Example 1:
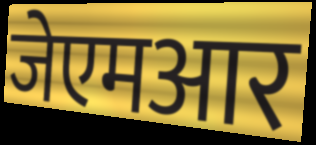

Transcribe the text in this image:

जेएमआर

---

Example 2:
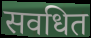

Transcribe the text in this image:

सवधित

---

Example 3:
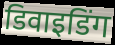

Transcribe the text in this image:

डिवाइडिंग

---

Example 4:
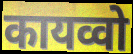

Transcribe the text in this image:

कायव्वो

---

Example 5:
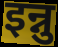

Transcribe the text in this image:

इन्नु